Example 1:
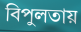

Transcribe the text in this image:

বিপুলতায়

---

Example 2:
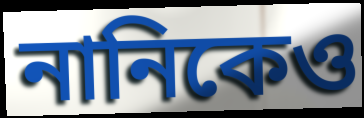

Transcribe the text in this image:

নানিকেও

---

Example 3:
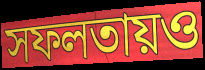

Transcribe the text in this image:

সফলতায়ও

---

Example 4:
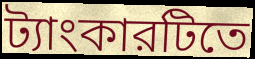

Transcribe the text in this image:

ট্যাংকারটিতে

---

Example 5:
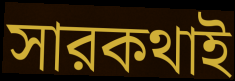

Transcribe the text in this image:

সারকথাই